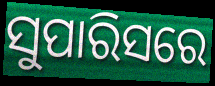
ସୁପାରିସରେ